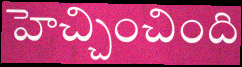
హెచ్చించింది